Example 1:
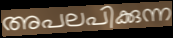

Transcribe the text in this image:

അപലപിക്കുന്ന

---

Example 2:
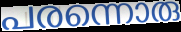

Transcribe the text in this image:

പരന്നൊരു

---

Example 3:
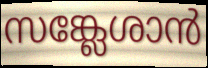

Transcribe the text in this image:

സങ്ക്ലേശാൻ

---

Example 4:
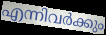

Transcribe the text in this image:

എന്നിവർക്കും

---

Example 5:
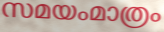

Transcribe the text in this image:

സമയംമാത്രം